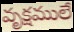
వృక్షములే